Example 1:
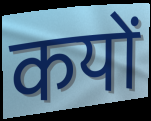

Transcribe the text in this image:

कयों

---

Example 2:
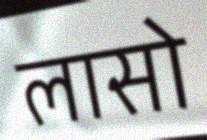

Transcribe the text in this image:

लासो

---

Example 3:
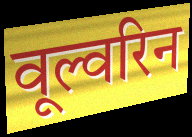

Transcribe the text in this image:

वूल्वरिन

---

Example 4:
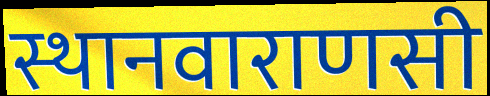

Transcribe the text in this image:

स्थानवाराणसी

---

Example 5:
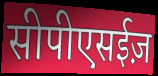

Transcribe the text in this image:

सीपीएसईज़